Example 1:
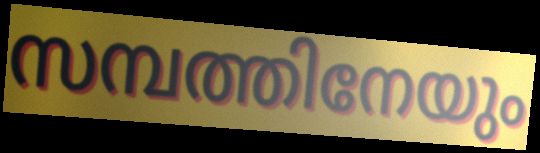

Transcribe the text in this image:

സമ്പത്തിനേയും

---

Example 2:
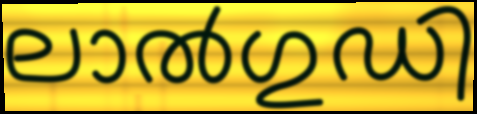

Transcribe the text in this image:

ലാൽഗുഡി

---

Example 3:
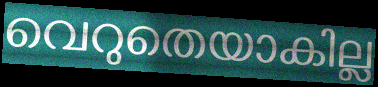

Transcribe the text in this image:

വെറുതെയാകില്ല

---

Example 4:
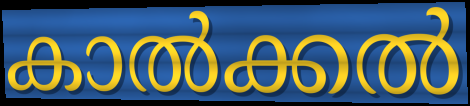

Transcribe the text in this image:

കാൽക്കൽ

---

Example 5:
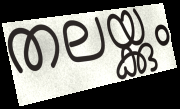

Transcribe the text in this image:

തലയ്ക്കും